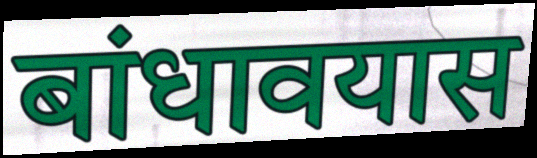
बांधावयास